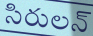
సిరులన్